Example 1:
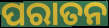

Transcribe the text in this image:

ପରାତନ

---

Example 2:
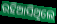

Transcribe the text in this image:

ରହିଆସିଥିଲେ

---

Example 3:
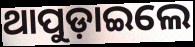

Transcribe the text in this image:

ଥାପୁଡ଼ାଇଲେ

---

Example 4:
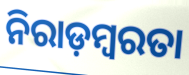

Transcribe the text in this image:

ନିରାଡ଼ମ୍ବରତା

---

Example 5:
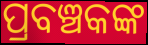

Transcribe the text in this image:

ପ୍ରବଞ୍ଚକଙ୍କ